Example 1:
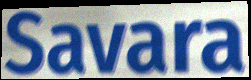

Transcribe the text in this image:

Savara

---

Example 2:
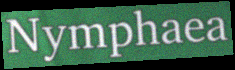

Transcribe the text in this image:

Nymphaea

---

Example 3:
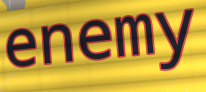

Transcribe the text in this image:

enemy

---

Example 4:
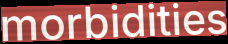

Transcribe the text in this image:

morbidities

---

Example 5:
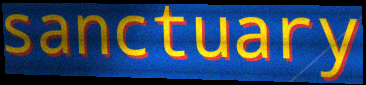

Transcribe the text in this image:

sanctuary